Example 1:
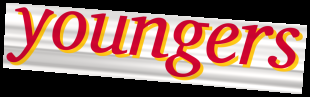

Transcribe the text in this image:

youngers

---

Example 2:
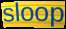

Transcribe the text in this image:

sloop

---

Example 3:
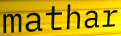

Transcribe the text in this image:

mathar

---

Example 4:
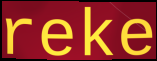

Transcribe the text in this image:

reke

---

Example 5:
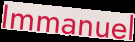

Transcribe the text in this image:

Immanuel